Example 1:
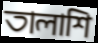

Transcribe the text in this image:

তালাশি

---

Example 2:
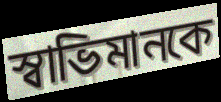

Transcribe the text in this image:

স্বাভিমানকে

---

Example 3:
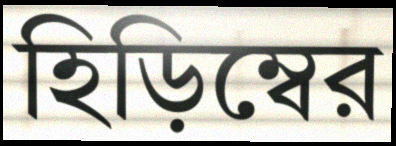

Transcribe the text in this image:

হিড়িম্বের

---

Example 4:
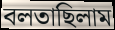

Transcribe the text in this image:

বলতাছিলাম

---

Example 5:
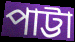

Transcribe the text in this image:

পাট্টা